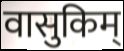
वासुकिम्